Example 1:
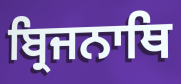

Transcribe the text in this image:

ਬ੍ਰਿਜਨਾਥਿ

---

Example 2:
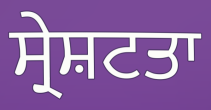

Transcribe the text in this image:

ਸ੍ਰੇਸ਼ਟਤਾ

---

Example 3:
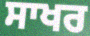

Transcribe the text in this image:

ਸਾਖਰ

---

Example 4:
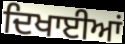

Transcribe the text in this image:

ਦਿਖਾਈਆਂ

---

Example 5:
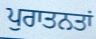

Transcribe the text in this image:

ਪੁਰਾਤਨਤਾਂ